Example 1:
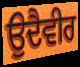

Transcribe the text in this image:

ਉਦੈਵੀਰ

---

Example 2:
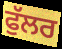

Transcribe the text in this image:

ਫੁੱਲਰ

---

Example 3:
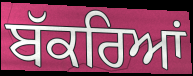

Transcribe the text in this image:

ਬੱਕਰਿਆਂ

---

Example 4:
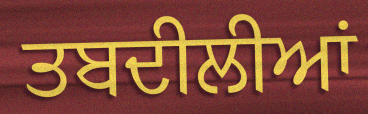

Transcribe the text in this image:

ਤਬਦੀਲੀਆਂ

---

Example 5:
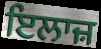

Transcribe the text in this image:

ਇਲਾਜ਼